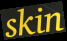
skin